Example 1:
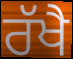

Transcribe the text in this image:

ਰੱਖੈ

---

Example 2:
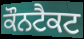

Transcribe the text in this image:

ਕੌਨਟੈਕਟ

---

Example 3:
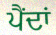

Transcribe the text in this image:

ਪੈਂਦਾਂ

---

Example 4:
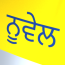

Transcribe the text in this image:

ਨੂਵੇਲ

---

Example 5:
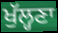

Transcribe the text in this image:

ਖੁੱਲ੍ਹਣਾ